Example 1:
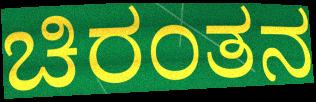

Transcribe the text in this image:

ಚಿರಂತನ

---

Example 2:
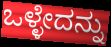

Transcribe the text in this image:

ಒಳ್ಳೇದನ್ನು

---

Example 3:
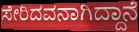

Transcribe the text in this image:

ಸೇರಿದವನಾಗಿದ್ದಾನೆ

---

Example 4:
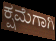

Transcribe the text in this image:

ಕ್ಷಮೆಗಾಗಿ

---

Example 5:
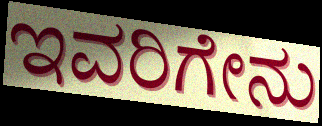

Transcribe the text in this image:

ಇವರಿಗೇನು